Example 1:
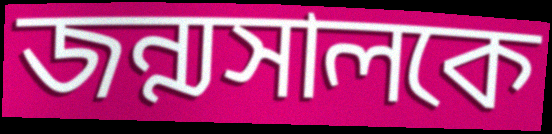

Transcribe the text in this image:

জন্মসালকে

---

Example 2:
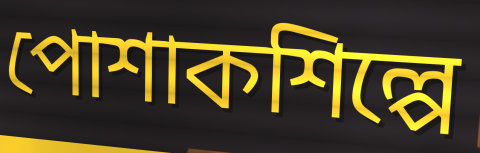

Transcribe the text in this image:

পোশাকশিল্পে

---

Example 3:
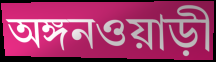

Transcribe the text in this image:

অঙ্গনওয়াড়ী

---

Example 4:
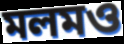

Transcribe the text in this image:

মলমও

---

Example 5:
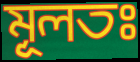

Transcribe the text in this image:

মূলতঃ